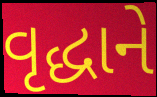
વૃદ્ધાને